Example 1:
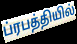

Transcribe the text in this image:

ப்ரபத்தியில்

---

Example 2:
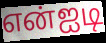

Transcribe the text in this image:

என்ஐடி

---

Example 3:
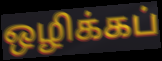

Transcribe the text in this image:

ஒழிக்கப்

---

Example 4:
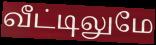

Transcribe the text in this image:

வீட்டிலுமே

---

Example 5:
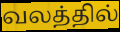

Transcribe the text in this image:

வலத்தில்